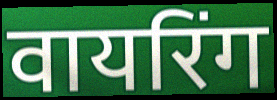
वायरिंग